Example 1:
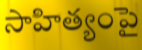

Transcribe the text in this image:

సాహిత్యంపై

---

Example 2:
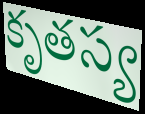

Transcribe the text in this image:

కృతస్య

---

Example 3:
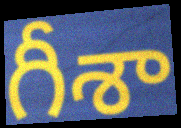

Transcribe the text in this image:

గీశా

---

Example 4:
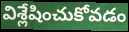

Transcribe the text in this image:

విశ్లేషించుకోవడం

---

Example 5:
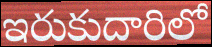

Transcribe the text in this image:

ఇరుకుదారిలో